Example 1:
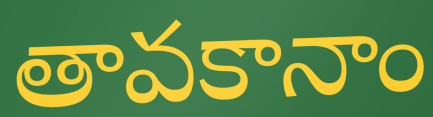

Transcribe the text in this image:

తావకానాం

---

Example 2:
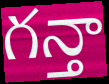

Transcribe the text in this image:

గన్తా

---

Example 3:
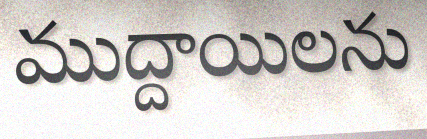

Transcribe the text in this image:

ముద్దాయిలను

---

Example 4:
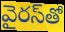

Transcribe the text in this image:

వైరస్‌తో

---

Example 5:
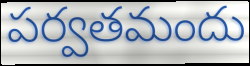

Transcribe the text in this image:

పర్వతమందు